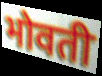
भोवती